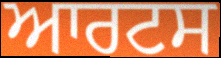
ਆਰਟਸ